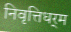
निवृत्तिधर्म